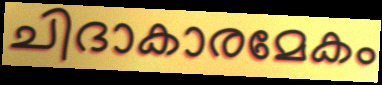
ചിദാകാരമേകം